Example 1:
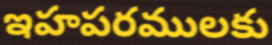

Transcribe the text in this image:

ఇహపరములకు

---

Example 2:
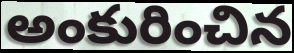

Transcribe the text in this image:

అంకురించిన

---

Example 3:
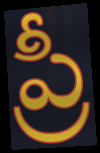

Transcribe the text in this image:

ప్రీ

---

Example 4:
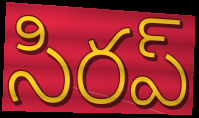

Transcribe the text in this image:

సిరప్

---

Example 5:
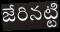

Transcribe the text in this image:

జేరినట్టి